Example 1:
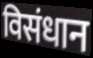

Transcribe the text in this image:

विसंधान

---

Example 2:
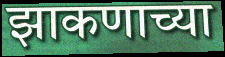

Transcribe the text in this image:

झाकणाच्या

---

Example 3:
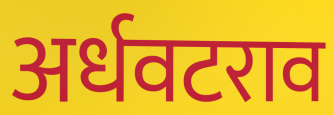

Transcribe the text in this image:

अर्धवटराव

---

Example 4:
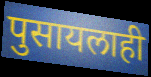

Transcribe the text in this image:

पुसायलाही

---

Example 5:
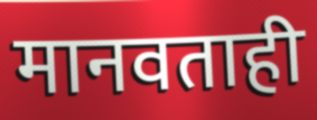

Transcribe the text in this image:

मानवताही